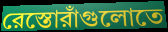
রেস্তোরাঁগুলোতে